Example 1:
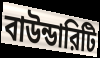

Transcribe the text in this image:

বাউন্ডারিটি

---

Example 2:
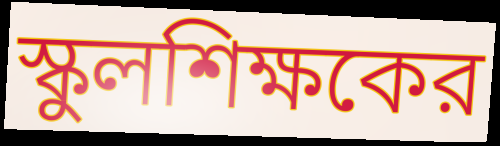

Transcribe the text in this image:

স্কুলশিক্ষকের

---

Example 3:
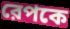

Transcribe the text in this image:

রেপকে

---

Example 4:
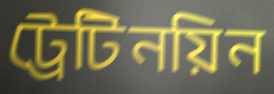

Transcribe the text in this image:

ট্রেটিনয়িন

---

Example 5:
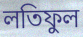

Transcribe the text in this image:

লতিফুল